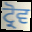
ਟ੍ਰੋਵ